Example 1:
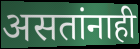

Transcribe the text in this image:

असतांनाही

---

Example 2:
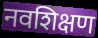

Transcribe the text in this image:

नवशिक्षण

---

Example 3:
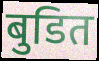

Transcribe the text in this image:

बुडित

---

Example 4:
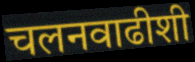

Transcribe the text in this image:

चलनवाढीशी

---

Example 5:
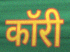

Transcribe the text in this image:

कॉरी